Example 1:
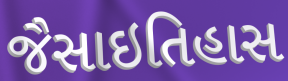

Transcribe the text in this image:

જૈસાઇતિહાસ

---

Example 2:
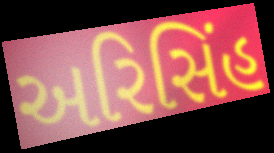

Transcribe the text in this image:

અરિસિંહ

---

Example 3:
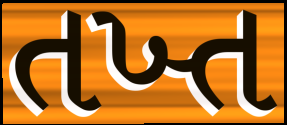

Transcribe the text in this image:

તખ્ત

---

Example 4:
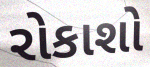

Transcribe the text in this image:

રોકાશો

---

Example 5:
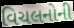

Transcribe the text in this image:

વિચલનોની